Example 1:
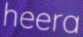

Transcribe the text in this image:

heera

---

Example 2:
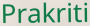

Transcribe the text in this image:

Prakriti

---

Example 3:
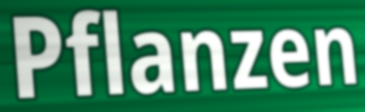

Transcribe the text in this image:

Pflanzen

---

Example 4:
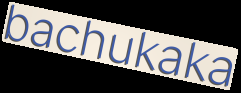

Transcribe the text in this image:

bachukaka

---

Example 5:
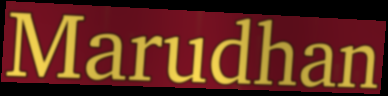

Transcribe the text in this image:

Marudhan